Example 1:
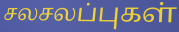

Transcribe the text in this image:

சலசலப்புகள்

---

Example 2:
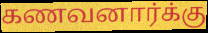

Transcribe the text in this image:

கணவனார்க்கு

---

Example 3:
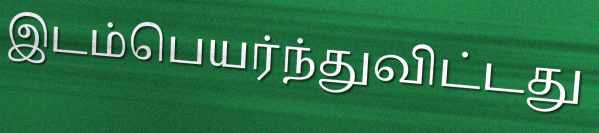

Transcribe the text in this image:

இடம்பெயர்ந்துவிட்டது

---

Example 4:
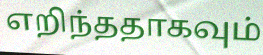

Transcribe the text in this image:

எறிந்ததாகவும்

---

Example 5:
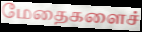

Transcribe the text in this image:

மேதைகளைச்